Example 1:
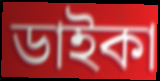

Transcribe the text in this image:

ডাইকা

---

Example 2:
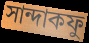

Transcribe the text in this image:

সান্দাকফু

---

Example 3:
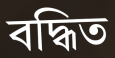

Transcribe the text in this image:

বদ্ধিত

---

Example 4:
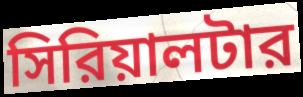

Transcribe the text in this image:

সিরিয়ালটার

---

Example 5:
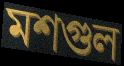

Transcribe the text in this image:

মশগুল